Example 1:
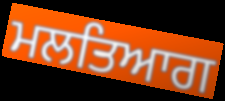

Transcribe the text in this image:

ਮਲਤਿਆਗ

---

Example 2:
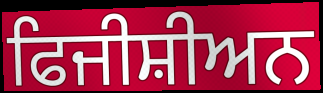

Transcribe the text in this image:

ਫਿਜੀਸ਼ੀਅਨ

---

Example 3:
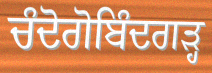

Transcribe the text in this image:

ਚੰਦੋਗੋਬਿੰਦਗੜ੍ਹ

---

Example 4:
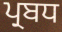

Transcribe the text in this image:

ਪ੍ਰਬਧ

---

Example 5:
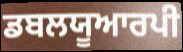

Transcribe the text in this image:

ਡਬਲਯੂਆਰਪੀ